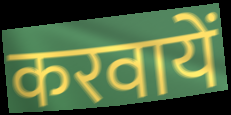
करवायें